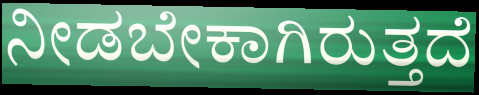
ನೀಡಬೇಕಾಗಿರುತ್ತದೆ